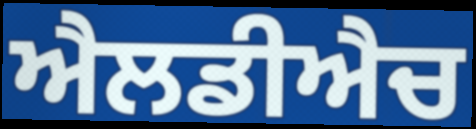
ਐਲਡੀਐਚ